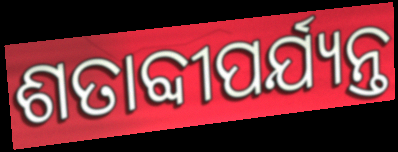
ଶତାବ୍ଦୀପର୍ଯ୍ୟନ୍ତ